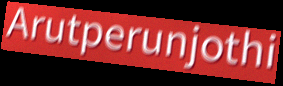
Arutperunjothi